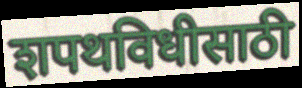
शपथविधीसाठी